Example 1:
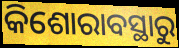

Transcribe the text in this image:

କିଶୋରାବସ୍ଥାରୁ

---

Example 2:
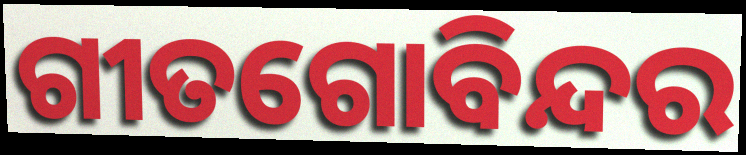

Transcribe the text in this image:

ଗୀତଗୋବିନ୍ଦର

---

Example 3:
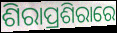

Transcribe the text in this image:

ଶିରାପ୍ରଶିରାରେ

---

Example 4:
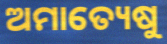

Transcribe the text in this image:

ଅମାତ୍ୟେଷୁ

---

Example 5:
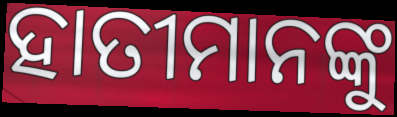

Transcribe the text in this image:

ହାତୀମାନଙ୍କୁ